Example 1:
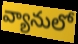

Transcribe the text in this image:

వ్యానులో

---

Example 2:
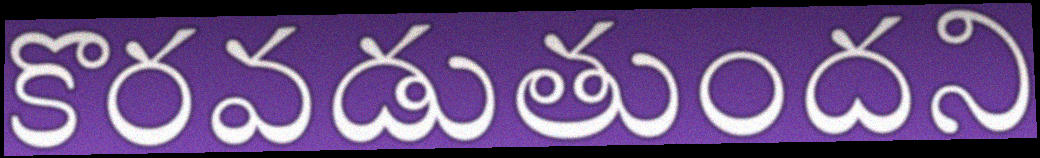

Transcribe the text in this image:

కొరవడుతుందని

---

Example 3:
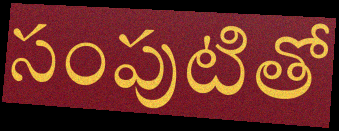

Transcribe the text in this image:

సంపుటితో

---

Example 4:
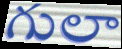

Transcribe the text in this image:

గులా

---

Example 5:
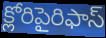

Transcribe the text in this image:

క్లోరిపైరిఫాస్